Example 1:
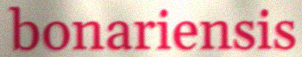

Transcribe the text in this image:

bonariensis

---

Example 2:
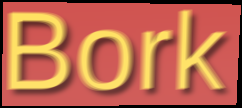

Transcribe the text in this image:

Bork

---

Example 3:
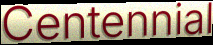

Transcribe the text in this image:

Centennial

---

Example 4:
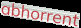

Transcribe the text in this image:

abhorrent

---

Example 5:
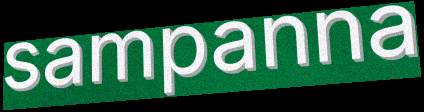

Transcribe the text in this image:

sampanna